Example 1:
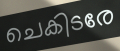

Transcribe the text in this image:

ചെകിടരേ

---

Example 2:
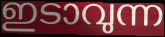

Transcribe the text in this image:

ഇടാവുന്ന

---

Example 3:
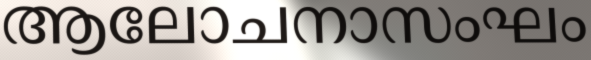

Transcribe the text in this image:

ആലോചനാസംഘം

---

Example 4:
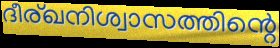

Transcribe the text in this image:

ദീര്ഖനിശ്വാസത്തിന്റെ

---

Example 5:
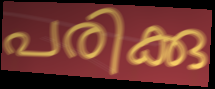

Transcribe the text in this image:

പരിക്കു